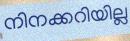
നിനക്കറിയില്ല